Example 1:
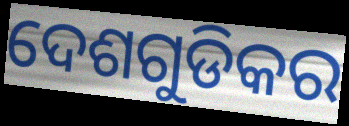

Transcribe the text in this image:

ଦେଶଗୁଡିକର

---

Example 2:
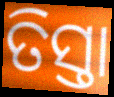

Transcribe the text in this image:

ତିସ୍ତା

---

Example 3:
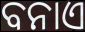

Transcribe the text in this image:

ବନାଏ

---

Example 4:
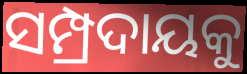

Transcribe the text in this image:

ସମ୍ପ୍ରଦାୟକୁ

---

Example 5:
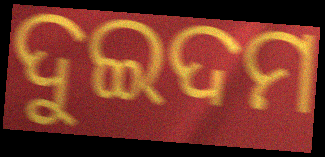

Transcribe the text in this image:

ଦୁଇଦମ